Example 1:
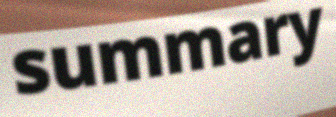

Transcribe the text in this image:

summary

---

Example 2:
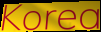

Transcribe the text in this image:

Korea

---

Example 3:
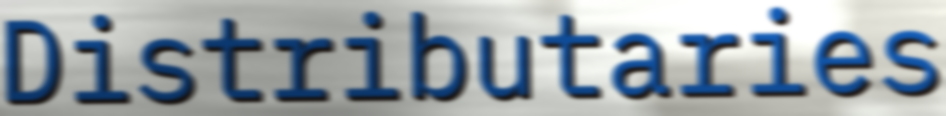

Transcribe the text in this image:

Distributaries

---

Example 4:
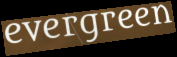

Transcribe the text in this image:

evergreen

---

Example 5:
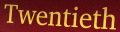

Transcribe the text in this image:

Twentieth